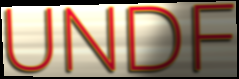
UNDF